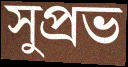
সুপ্রভ